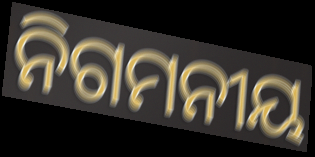
ନିଗମନୀୟ